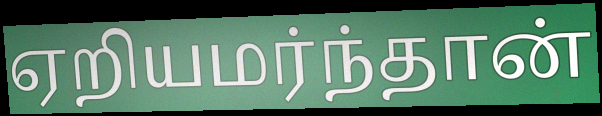
ஏறியமர்ந்தான்